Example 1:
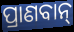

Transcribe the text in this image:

ପ୍ରାଣବାନ୍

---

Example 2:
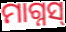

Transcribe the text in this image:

ମାଗ୍ନସ୍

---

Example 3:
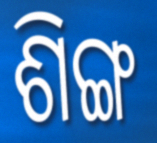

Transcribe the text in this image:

ଶିଙ୍ଗ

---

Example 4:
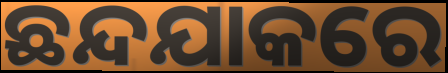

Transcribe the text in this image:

ଛନ୍ଦଯାକରେ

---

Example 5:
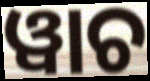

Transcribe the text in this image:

ୱାଚ